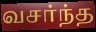
வசர்ந்த